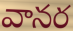
వానర